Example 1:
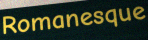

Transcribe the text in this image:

Romanesque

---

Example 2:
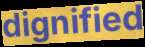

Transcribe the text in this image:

dignified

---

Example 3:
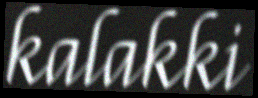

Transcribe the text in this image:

kalakki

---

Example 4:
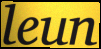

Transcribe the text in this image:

leun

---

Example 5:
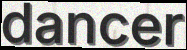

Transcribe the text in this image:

dancer